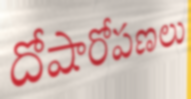
దోషారోపణలు